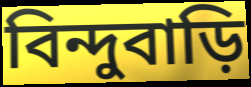
বিন্দুবাড়ি